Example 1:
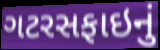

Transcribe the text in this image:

ગટરસફાઇનું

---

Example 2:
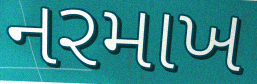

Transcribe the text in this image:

નરમાખ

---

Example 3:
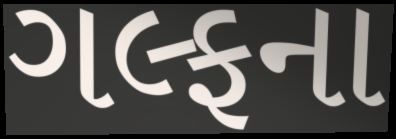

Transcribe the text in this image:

ગલ્ફના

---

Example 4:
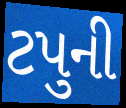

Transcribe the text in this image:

ટપુની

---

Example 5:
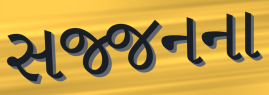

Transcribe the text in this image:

સજ્જનના